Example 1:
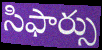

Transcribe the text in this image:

సిఫార్సు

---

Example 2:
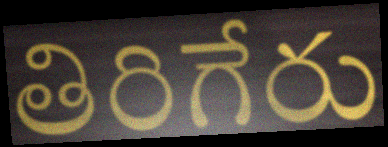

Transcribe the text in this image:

తిరిగేరు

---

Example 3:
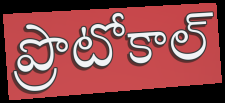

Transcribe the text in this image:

ప్రొటోకాల్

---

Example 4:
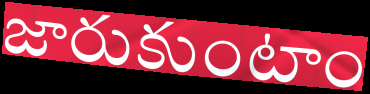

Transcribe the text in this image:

జారుకుంటాం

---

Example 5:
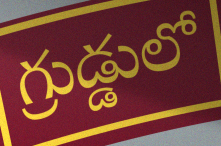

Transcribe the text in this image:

గ్రుడ్డులో